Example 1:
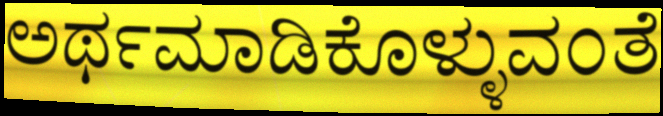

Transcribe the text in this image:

ಅರ್ಥಮಾಡಿಕೊಳ್ಳುವಂತೆ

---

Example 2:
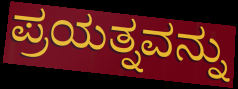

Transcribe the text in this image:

ಪ್ರಯತ್ನವನ್ನು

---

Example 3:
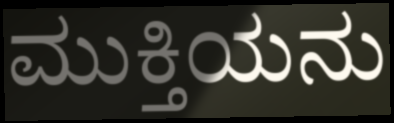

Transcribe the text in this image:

ಮುಕ್ತಿಯನು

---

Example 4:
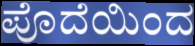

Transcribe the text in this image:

ಪೊದೆಯಿಂದ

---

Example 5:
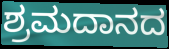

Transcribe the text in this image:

ಶ್ರಮದಾನದ